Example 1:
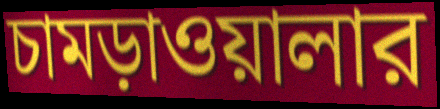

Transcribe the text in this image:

চামড়াওয়ালার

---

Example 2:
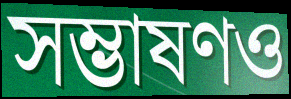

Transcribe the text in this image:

সম্ভাষণও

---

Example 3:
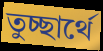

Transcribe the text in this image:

তুচ্ছার্থে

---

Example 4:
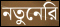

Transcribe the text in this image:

নতুনেরি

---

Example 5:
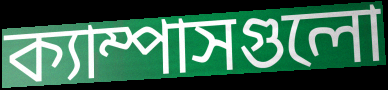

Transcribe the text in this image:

ক্যাম্পাসগুলো